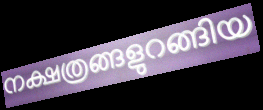
നക്ഷത്രങ്ങളുറങ്ങിയ